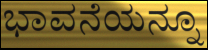
ಭಾವನೆಯನ್ನೂ